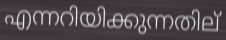
എന്നറിയിക്കുന്നതില്